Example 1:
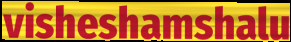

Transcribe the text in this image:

visheshamshalu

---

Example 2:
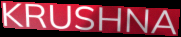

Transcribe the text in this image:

KRUSHNA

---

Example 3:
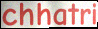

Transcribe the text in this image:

chhatri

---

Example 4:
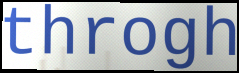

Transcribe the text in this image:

throgh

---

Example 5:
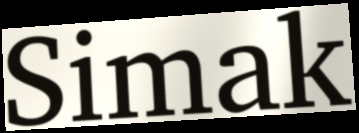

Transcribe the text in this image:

Simak